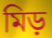
মিড়